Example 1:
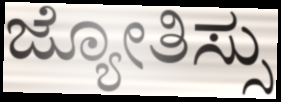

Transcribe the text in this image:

ಜ್ಯೋತಿಸ್ಸು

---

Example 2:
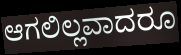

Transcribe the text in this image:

ಆಗಲಿಲ್ಲವಾದರೂ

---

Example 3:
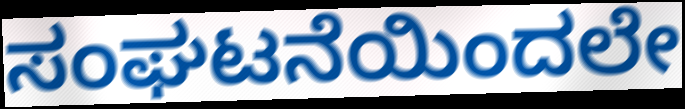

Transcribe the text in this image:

ಸಂಘಟನೆಯಿಂದಲೇ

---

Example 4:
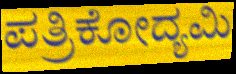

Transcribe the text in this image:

ಪತ್ರಿಕೋದ್ಯಮಿ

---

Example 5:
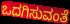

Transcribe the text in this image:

ಒದಗಿಸುವಂತೆ